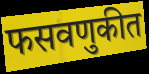
फसवणुकीत